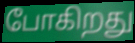
போகிறது